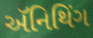
ઍનિથિંગ